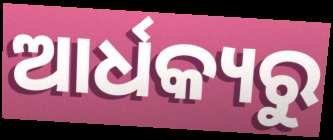
ଆର୍ଧକ୍ୟରୁ